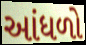
આંધળો